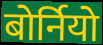
बोर्नियो